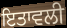
ਇਤਾਵਲੀ